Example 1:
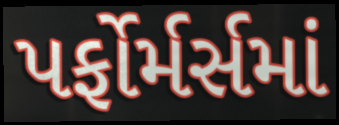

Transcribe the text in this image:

પર્ફોર્મર્સમાં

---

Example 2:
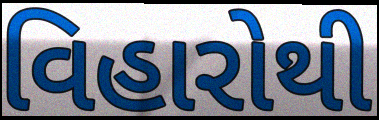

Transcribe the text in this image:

વિહારોથી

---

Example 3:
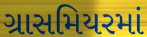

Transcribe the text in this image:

ગ્રાસમિયરમાં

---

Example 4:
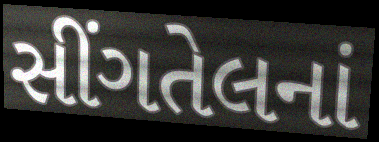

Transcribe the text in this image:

સીંગતેલનાં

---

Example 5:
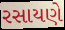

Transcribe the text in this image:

રસાયણે